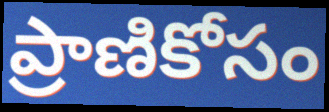
ప్రాణికోసం